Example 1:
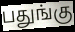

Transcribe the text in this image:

பதுங்கு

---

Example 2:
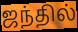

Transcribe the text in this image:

ஜந்தில்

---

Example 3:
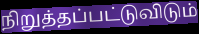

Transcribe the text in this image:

நிறுத்தப்பட்டுவிடும்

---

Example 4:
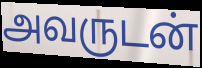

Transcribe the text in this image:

அவருடன்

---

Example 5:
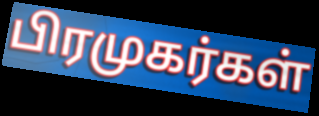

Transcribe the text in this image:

பிரமுகர்கள்